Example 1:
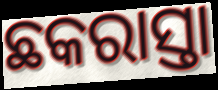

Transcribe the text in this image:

ଛକରାସ୍ତା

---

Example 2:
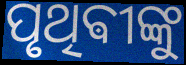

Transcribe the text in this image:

ପୃଥିଵୀଙ୍କୁ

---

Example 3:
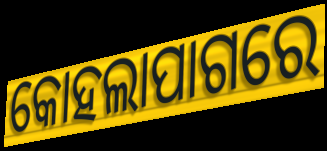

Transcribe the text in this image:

କୋହଲାପାଗରେ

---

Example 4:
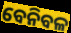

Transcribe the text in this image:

ବେନିବଳ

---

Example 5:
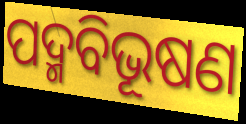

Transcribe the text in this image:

ପଦ୍ମବିଭୂଷଣ